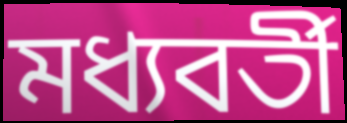
মধ্যবর্তী